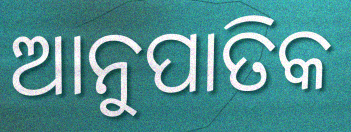
ଆନୁପାତିକ